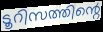
ടൂറിസത്തിന്റെ